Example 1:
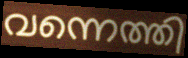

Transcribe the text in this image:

വന്നെത്തി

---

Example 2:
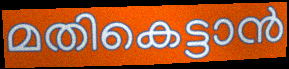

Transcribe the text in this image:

മതികെട്ടാൻ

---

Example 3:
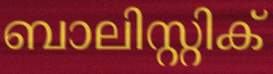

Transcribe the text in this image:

ബാലിസ്റ്റിക്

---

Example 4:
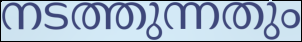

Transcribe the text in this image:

നടത്തുന്നതും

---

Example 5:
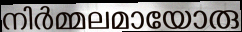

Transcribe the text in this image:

നിർമ്മലമായോരു